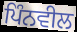
ਪਿੰਨਵੀਲ